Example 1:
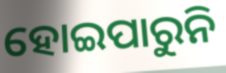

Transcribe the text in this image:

ହୋଇପାରୁନି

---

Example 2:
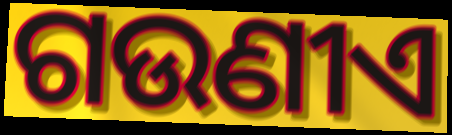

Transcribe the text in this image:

ଗଉଣୀଏ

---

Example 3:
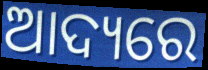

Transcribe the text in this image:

ଆଦ୍ୟରେ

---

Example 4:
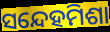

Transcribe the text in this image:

ସନ୍ଦେହମିଶା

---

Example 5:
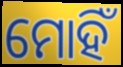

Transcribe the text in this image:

ମୋହିଁ